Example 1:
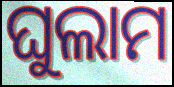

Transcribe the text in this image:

ଘୁଲାମ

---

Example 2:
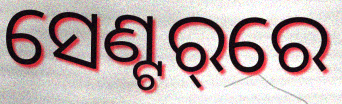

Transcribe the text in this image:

ସେଣ୍ଟର୍‌ରେ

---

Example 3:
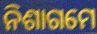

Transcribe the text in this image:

ନିଶାଗମେ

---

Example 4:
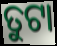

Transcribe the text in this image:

ତୁଟା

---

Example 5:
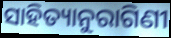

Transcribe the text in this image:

ସାହିତ୍ୟାନୁରାଗିଣୀ